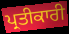
ਪ੍ਰਤੀਕਾਰੀ